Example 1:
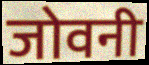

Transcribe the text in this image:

जोवनी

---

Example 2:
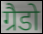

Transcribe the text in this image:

ग्रैडो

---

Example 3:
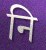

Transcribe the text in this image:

नि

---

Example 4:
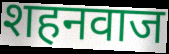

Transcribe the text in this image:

शहनवाज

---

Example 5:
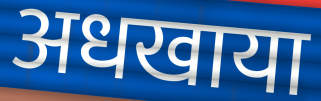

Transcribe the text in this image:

अधखाया